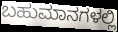
ಬಹುಮಾನಗಳಲ್ಲಿ